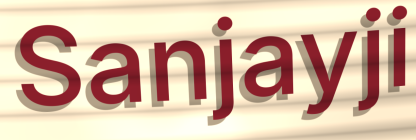
Sanjayji